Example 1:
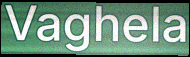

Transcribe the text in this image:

Vaghela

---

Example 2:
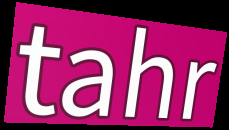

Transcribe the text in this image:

tahr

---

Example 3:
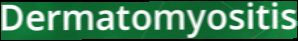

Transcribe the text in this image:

Dermatomyositis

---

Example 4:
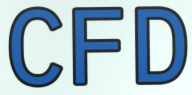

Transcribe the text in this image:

CFD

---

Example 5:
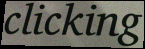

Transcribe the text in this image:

clicking